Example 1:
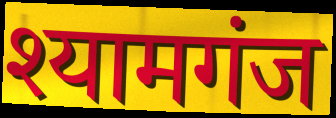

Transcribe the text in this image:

श्यामगंज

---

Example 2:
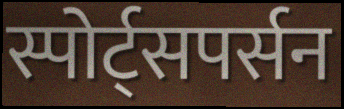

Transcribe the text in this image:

स्पोर्ट्सपर्सन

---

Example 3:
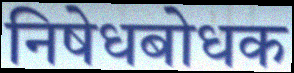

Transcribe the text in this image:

निषेधबोधक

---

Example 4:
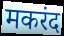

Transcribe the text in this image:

मकरंद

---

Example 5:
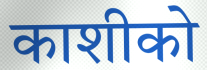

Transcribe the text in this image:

काशीको